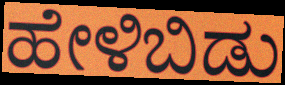
ಹೇಳಿಬಿಡು